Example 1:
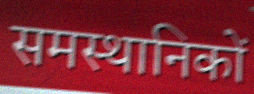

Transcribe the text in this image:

समस्थानिकों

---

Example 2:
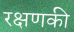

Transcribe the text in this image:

रक्षणकी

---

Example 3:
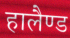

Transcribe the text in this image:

हालैण्ड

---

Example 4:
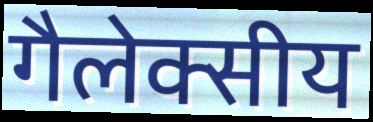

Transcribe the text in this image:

गैलेक्सीय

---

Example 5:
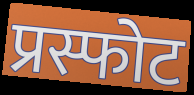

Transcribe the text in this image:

प्रस्फोट